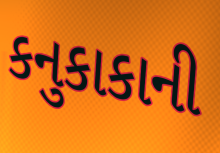
કનુકાકાની